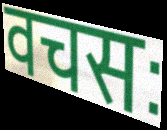
वचसः